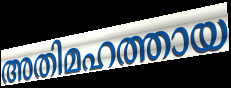
അതിമഹത്തായ